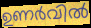
ഉണർവിൽ